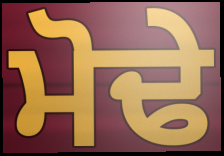
ਮੋਢੇ